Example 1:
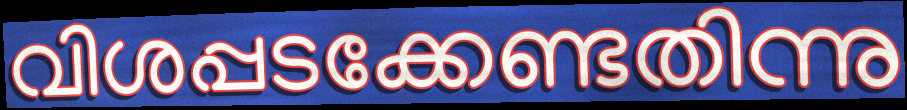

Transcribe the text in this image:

വിശപ്പടക്കേണ്ടതിന്നു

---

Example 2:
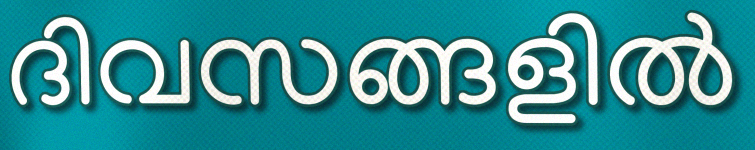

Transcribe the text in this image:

ദിവസങ്ങളിൽ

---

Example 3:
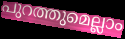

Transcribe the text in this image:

പുറത്തുമെല്ലാം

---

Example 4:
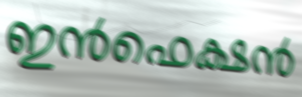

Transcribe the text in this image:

ഇൻഫെക്ഷൻ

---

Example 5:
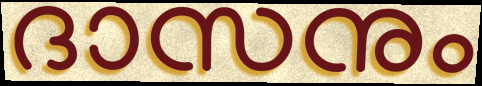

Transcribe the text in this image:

ദാസനും